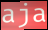
aja